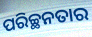
ପରିଚ୍ଛନତାର